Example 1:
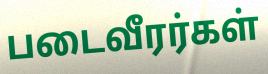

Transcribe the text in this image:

படைவீரர்கள்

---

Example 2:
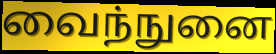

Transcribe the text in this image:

வைந்நுனை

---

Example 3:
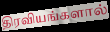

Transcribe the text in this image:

திரவியங்களால்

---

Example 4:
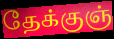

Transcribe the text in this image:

தேக்குஞ்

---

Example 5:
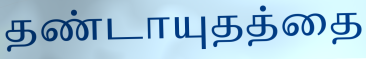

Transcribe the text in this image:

தண்டாயுதத்தை